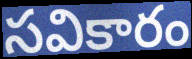
సవికారం